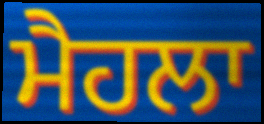
ਮੈਹਲਾ